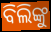
ବିଲିଙ୍କୁ